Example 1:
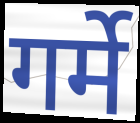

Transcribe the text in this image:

गर्मे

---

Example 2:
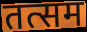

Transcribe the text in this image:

तत्सम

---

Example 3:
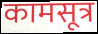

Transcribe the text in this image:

कामसूत्र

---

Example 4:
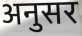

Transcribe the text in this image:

अनुसर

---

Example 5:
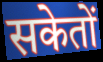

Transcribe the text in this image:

सकेतों